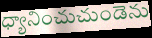
ధ్యానించుచుండెను